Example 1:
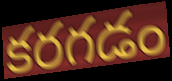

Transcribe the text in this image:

కరగడం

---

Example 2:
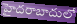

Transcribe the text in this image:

హైదరాబాదులో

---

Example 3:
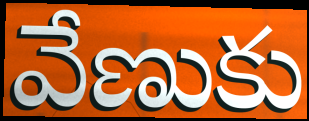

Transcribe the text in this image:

వేణుకు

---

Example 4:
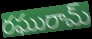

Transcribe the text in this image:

రఘురామ్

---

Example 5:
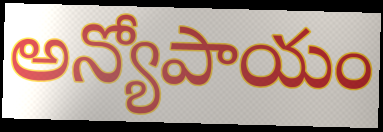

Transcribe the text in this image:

అన్యోపాయం